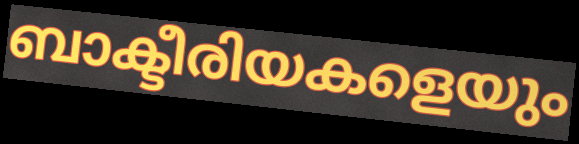
ബാക്ടീരിയകളെയും